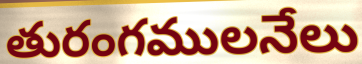
తురంగములనేలు